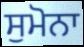
ਸੁਮੋਨਾ